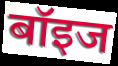
बॉइज